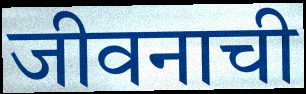
जीवनाची